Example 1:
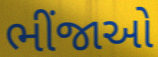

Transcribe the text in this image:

ભીંજાઓ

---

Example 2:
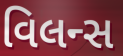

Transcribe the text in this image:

વિલન્સ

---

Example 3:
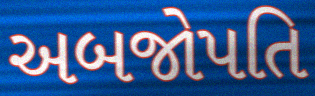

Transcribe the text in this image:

અબજોપતિ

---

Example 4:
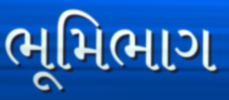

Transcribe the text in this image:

ભૂમિભાગ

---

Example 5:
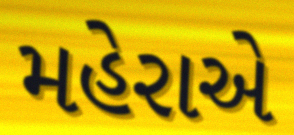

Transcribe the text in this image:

મહેરાએ